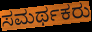
ಸಮರ್ಥಕರು